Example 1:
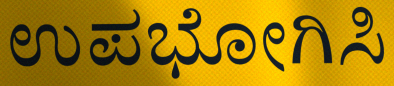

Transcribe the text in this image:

ಉಪಭೋಗಿಸಿ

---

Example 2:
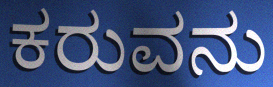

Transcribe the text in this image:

ಕರುವನು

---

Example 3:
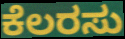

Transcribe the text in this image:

ಕೆಲರಸು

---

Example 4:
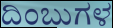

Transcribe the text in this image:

ದಿಂಬುಗಳ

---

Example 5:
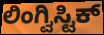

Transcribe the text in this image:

ಲಿಂಗ್ವಿಸ್ಟಿಕ್